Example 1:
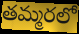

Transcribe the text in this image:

తమ్మరలో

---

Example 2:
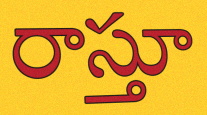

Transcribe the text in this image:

రాస్తూ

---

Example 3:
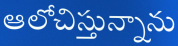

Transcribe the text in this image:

ఆలోచిస్తున్నాను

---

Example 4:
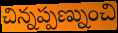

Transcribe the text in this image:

చిన్నప్పణ్నుంచి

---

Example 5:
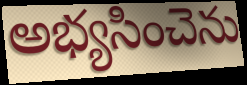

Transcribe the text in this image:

అభ్యసించెను